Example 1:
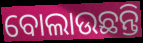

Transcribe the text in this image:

ବୋଲାଉଛନ୍ତି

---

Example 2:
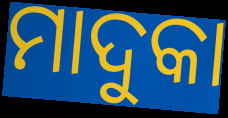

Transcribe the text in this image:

ମାଦୁକା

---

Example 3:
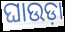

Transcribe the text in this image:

ଘାଉଡ଼ା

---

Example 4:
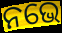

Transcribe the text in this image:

ନଭେ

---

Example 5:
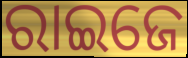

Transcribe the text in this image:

ରାଇଜେ